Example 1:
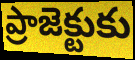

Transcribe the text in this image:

ప్రాజెక్టుకు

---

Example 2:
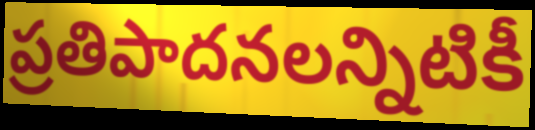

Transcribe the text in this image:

ప్రతిపాదనలన్నిటికీ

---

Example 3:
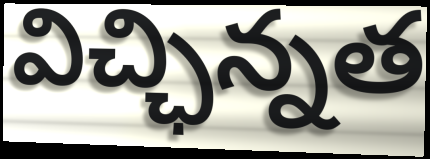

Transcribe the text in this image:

విచ్ఛిన్నత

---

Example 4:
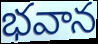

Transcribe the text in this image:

భవాన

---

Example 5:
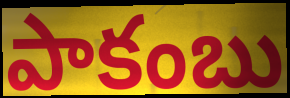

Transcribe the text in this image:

పాకంబు